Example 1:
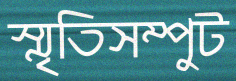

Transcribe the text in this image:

স্মৃতিসম্পুট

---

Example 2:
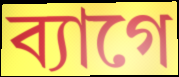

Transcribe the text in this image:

ব্যাগে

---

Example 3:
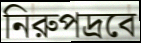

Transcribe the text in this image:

নিরুপদ্রবে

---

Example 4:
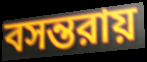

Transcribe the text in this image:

বসন্তরায়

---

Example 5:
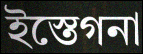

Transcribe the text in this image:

ইস্তেগনা